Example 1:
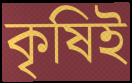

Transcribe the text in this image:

কৃষিই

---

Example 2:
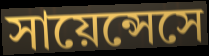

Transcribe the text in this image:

সায়েন্সেসে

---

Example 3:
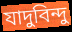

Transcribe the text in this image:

যাদুবিন্দু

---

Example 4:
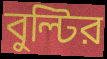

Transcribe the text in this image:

বুল্টির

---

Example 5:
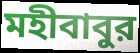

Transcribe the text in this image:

মহীবাবুর